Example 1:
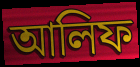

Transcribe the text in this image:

আলিফ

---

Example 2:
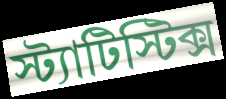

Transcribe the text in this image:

স্ট্যাটিস্টিক্স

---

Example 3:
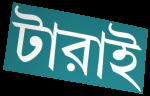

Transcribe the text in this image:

টারাই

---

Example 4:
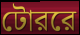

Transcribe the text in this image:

টোররে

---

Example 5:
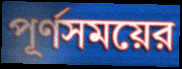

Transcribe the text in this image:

পূর্ণসময়ের